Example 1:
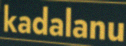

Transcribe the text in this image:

kadalanu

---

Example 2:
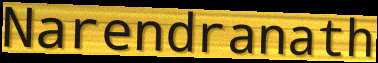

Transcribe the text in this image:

Narendranath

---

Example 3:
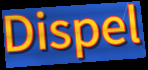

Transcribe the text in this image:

Dispel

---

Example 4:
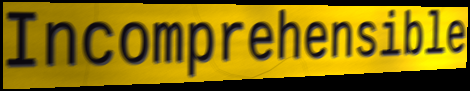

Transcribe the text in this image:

Incomprehensible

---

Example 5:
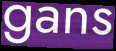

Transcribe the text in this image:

gans